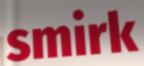
smirk